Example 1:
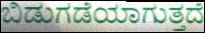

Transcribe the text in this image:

ಬಿಡುಗಡೆಯಾಗುತ್ತದೆ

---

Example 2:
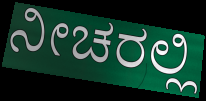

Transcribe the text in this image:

ನೀಚರಲ್ಲಿ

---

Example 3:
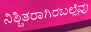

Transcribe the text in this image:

ನಿಶ್ಚಿತರಾಗಿರಬಲ್ಲೆವು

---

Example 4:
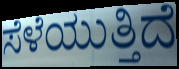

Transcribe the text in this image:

ಸೆಳೆಯುತ್ತಿದೆ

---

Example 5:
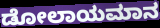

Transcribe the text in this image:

ಡೋಲಾಯಮಾನ